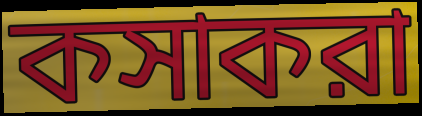
কসাকরা